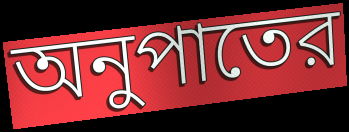
অনুপাতের